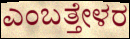
ಎಂಬತ್ತೇಳರ